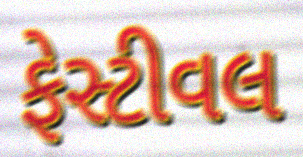
ફેસ્ટીવલ